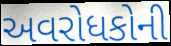
અવરોધકોની